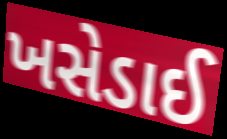
ખસેડાઈ